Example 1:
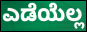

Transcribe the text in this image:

ಎಡೆಯೆಲ್ಲ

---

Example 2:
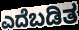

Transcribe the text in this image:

ಎದೆಬಡಿತ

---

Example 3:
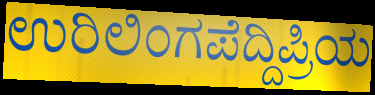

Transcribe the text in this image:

ಉರಿಲಿಂಗಪೆದ್ದಿಪ್ರಿಯ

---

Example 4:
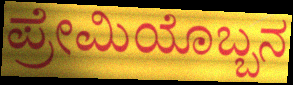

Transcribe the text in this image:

ಪ್ರೇಮಿಯೊಬ್ಬನ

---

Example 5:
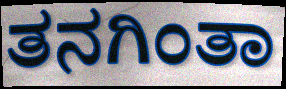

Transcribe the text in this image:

ತನಗಿಂತಾ